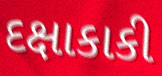
દક્ષાકાકી